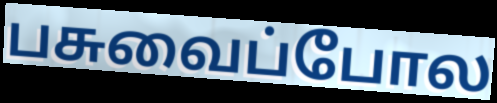
பசுவைப்போல